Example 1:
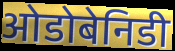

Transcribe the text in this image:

ओडोबेनिडी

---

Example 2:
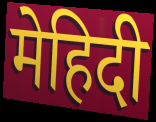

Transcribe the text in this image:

मेहिदी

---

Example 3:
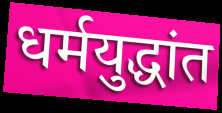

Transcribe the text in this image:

धर्मयुद्धांत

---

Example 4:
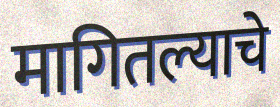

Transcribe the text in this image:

मागितल्याचे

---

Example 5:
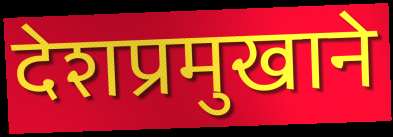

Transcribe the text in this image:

देशप्रमुखाने